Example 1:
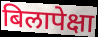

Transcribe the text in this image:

बिलापेक्षा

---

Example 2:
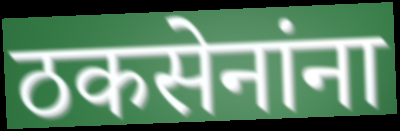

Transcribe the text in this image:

ठकसेनांना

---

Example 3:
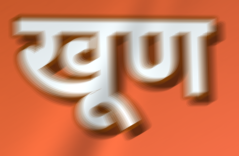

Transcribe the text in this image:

खूण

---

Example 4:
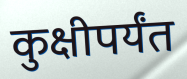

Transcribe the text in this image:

कुक्षीपर्यंत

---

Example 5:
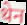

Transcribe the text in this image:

थेन